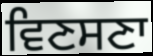
ਵਿਣਸਣਾ